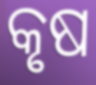
କୃଷ